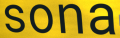
sona